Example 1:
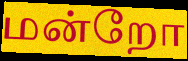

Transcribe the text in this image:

மன்றோ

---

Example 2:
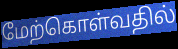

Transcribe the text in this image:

மேற்கொள்வதில்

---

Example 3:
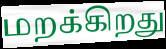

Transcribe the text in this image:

மறக்கிறது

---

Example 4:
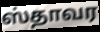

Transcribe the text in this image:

ஸ்தாவர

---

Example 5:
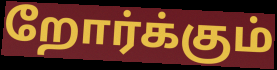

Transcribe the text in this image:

றோர்க்கும்